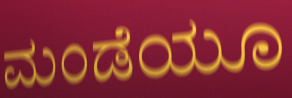
ಮಂಡೆಯೂ